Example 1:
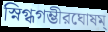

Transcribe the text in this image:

স্নিগ্ধগম্ভীরঘোষম্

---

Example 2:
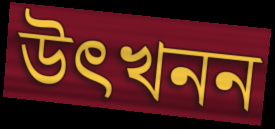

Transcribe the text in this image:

উৎখনন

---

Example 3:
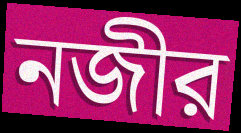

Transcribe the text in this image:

নজীর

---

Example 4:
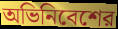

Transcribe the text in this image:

অভিনিবেশের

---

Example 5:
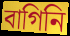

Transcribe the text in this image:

বাগিনি